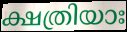
ക്ഷത്രിയാഃ